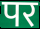
पर